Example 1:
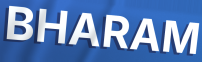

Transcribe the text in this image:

BHARAM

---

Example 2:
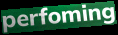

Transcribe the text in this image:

perfoming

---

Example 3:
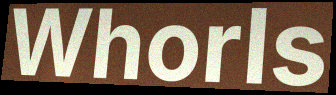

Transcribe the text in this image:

Whorls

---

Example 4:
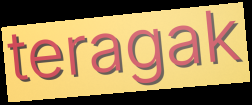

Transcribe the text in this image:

teragak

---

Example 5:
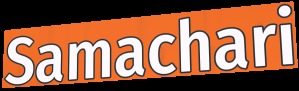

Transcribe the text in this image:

Samachari